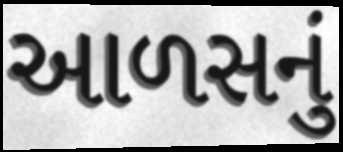
આળસનું